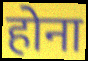
होना